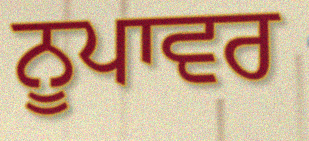
ਨੂਪਾਵਰ